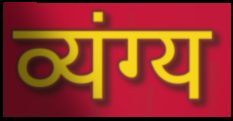
व्यंग्य